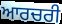
ਆਰਚਰੀ